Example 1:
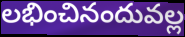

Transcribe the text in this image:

లభించినందువల్ల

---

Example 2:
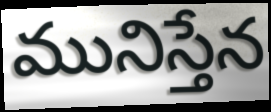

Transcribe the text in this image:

మునిస్తేన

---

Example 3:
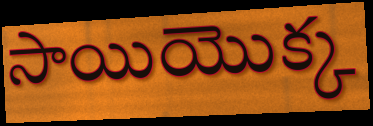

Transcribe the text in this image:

సాయియొక్క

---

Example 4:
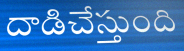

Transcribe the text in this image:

దాడిచేస్తుంది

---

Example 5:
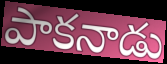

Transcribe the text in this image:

పాకనాడు